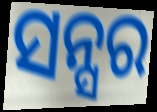
ସନ୍ସର